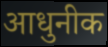
आधुनीक